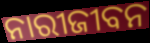
ନାରୀଜୀବନ